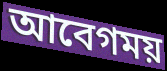
আবেগময়